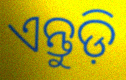
ଏନ୍ତୁଡ଼ି